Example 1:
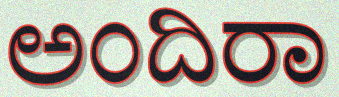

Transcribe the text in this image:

ಅಂದಿರಾ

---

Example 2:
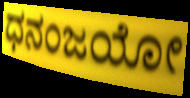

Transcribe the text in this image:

ಧನಂಜಯೋ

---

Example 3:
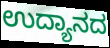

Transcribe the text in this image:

ಉದ್ಯಾನದ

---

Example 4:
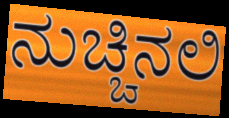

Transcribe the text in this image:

ನುಚ್ಚಿನಲಿ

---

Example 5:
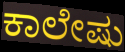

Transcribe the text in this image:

ಕಾಲೇಷು